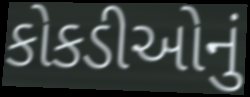
કોકડીઓનું